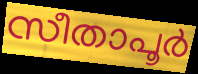
സീതാപൂർ